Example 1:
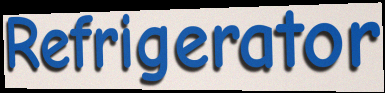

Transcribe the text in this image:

Refrigerator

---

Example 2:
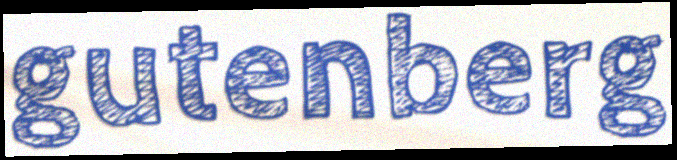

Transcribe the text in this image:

gutenberg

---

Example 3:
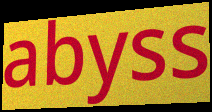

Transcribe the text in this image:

abyss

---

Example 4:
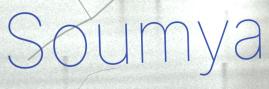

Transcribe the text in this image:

Soumya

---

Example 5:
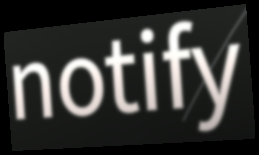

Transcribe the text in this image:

notify